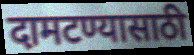
दामटण्यासाठी